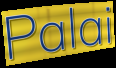
Palai